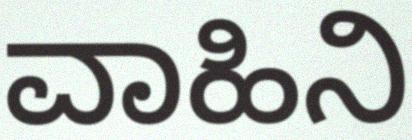
ವಾಹಿನಿ